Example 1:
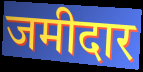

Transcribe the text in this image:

जमीदार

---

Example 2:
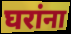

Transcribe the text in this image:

घरांना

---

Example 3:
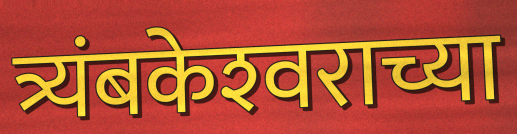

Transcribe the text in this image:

त्र्यंबकेश्‍वराच्या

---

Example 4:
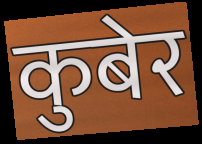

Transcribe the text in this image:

कुबेर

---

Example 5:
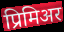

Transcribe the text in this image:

प्रिमिअर